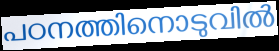
പഠനത്തിനൊടുവിൽ